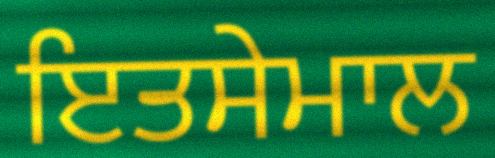
ਇਤਸੇਮਾਲ